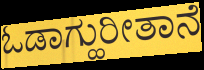
ಓಡಾಗ್ಹುರೀತಾನೆ